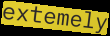
extemely